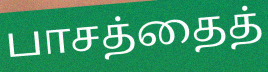
பாசத்தைத்